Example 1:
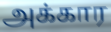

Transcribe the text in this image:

அக்கார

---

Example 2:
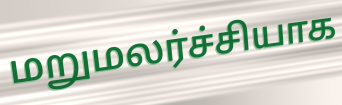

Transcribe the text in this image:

மறுமலர்ச்சியாக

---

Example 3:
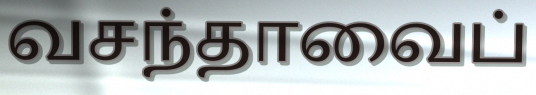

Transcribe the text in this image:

வசந்தாவைப்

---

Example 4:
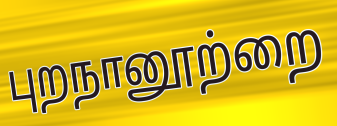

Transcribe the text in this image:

புறநானூற்றை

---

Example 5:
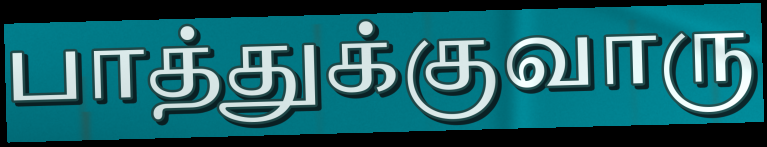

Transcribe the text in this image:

பாத்துக்குவாரு